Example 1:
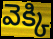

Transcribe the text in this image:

వెక్కి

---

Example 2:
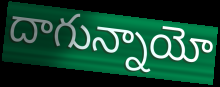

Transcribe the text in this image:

దాగున్నాయో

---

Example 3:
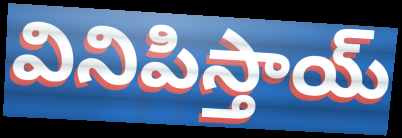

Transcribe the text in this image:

వినిపిస్తాయ్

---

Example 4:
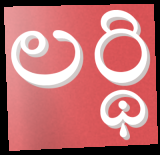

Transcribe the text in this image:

లర్థి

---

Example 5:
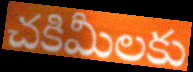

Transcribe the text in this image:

చకిమీలకు